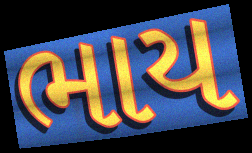
ભાય